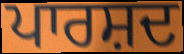
ਪਾਰਸ਼ਦ